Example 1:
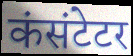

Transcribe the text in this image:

कंसंटेटर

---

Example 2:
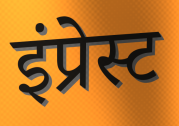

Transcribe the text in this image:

इंप्रेस्ट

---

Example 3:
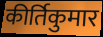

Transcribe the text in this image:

कीर्तिकुमार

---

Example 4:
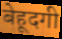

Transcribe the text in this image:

बेहूदगी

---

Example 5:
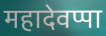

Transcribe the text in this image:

महादेवप्पा